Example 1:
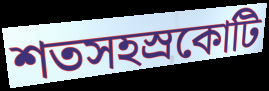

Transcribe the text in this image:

শতসহস্রকোটি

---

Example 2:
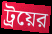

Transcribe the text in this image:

ট্রয়ের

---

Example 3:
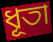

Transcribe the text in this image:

ধূতা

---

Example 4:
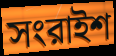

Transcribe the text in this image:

সংরাইশ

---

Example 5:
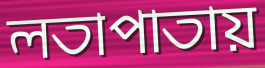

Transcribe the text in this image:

লতাপাতায়